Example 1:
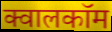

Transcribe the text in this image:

क्‍वालकॉम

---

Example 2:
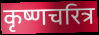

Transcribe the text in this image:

कृष्णचरित्र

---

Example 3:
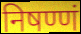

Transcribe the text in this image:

निषण्णं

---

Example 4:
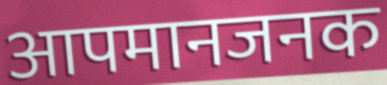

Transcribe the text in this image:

आपमानजनक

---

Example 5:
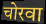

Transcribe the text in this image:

चोरवा